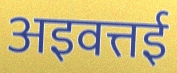
अइवत्तई